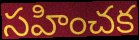
సహించక